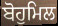
ਬੋਹੁਮਿਲ